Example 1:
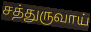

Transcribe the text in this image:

சத்துருவாய்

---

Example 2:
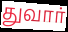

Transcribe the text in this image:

துவார்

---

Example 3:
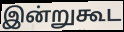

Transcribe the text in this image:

இன்றுகூட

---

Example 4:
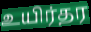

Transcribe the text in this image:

உயிர்தர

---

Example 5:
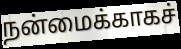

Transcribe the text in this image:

நன்மைக்காகச்